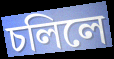
চলিলে